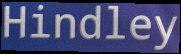
Hindley